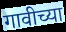
गावीच्या